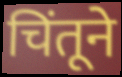
चिंतूने